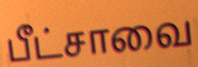
பீட்சாவை